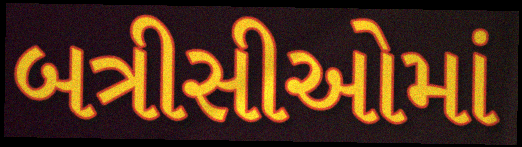
બત્રીસીઓમાં